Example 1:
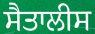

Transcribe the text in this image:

ਸੈਤਾਲੀਸ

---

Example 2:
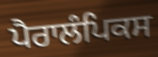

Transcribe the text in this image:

ਪੈਰਾਲੰਪਿਕਸ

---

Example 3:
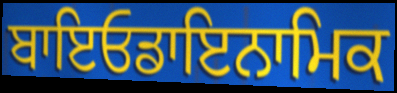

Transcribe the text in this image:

ਬਾਇਓਡਾਇਨਾਮਿਕ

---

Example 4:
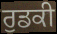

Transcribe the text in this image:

ਰੁਡਕੀ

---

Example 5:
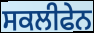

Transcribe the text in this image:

ਸਕਲੀਫੇਨ